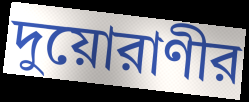
দুয়োরাণীর